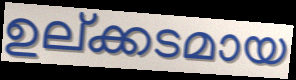
ഉല്ക്കടമായ